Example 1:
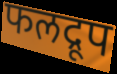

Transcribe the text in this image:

फलद्रूप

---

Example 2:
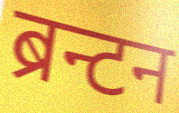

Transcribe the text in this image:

ब्रन्टन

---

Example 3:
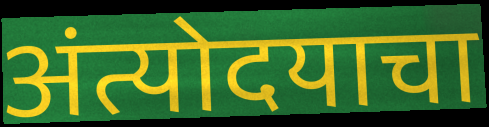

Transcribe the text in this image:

अंत्योदयाचा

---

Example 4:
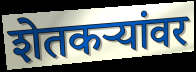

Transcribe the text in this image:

शेतकऱ्यांवर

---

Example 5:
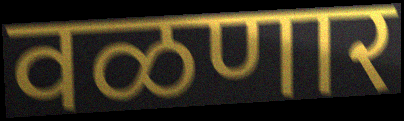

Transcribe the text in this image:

वळणार